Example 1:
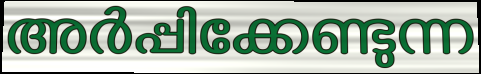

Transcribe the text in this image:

അർപ്പിക്കേണ്ടുന്ന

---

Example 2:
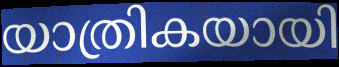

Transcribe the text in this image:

യാത്രികയായി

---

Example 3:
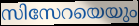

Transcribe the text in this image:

സിസേറയെയും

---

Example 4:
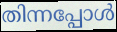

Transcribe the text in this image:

തിന്നപ്പോൾ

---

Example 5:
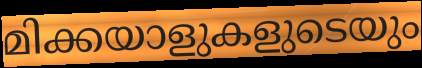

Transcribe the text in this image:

മിക്കയാളുകളുടെയും